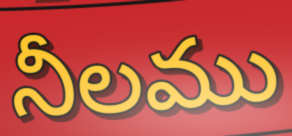
నీలము